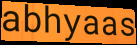
abhyaas